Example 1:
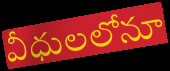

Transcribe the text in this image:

వీధులలోనూ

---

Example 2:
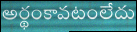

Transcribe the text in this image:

అర్థంకావటంలేదు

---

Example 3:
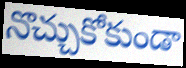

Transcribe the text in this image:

నొచ్చుకోకుండా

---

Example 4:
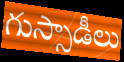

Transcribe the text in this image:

గుస్సాడీలు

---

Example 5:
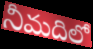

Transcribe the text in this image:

నీమదిలో